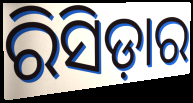
ରିସିଡ଼ାର